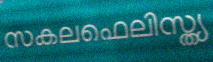
സകലഫെലിസ്ത്യ